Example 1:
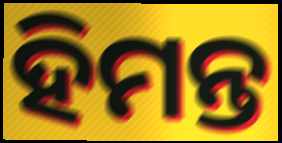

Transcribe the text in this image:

ହିମନ୍ତ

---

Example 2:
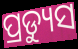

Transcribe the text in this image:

ପ୍ରଡ୍ୟୁସ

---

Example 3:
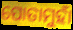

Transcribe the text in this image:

ପୋତାମୁହାଁ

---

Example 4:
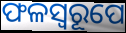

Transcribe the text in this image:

ଫଳସ୍ୱରୂପେ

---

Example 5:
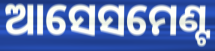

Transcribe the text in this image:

ଆସେସମେଣ୍ଟ